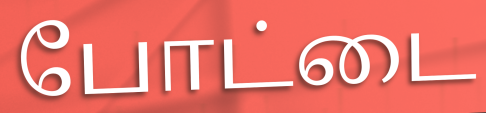
போட்டை